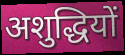
अशुद्धियों